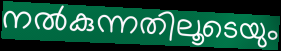
നൽകുന്നതിലൂടെയും